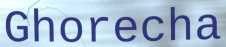
Ghorecha